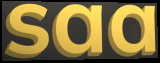
saa